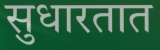
सुधारतात